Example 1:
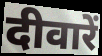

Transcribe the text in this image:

दीवारें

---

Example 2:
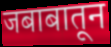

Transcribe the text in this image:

जबाबातून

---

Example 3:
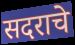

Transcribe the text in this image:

सदराचे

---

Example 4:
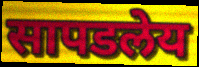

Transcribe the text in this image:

सापडलेय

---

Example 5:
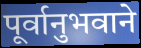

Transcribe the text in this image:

पूर्वानुभवाने